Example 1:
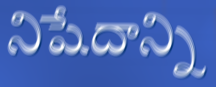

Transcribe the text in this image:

నిషేదాన్ని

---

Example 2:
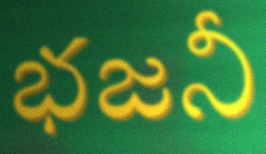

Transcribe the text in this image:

భజనీ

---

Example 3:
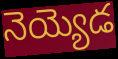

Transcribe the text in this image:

నెయ్యెడ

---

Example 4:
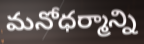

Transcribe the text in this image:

మనోధర్మాన్ని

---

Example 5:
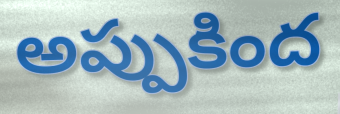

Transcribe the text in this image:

అప్పుకింద